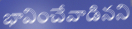
భావించేవాడినని